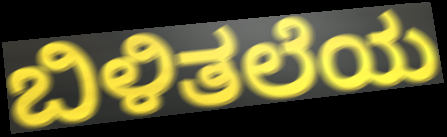
ಬಿಳಿತಲೆಯ